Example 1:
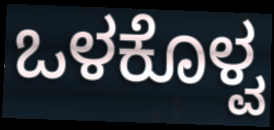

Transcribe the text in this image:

ಒಳಕೊಳ್ವ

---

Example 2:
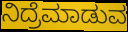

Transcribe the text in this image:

ನಿದ್ರೆಮಾಡುವ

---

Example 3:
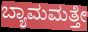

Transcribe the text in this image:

ಬ್ಯಾಮಮತ್ತೇ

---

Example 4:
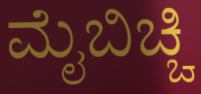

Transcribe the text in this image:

ಮೈಬಿಚ್ಚಿ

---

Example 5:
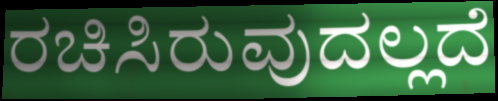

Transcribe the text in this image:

ರಚಿಸಿರುವುದಲ್ಲದೆ